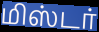
மிஸ்டர்